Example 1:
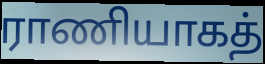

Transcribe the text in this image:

ராணியாகத்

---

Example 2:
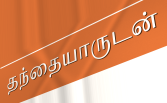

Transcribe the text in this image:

தந்தையாருடன்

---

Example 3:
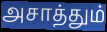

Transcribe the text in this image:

அசாத்தும்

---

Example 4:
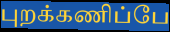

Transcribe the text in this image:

புறக்கணிப்பே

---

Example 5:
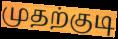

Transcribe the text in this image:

முதற்குடி